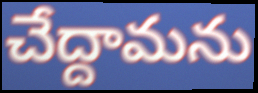
చేద్దామను